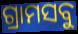
ଗ୍ରାମସବୁ